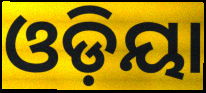
ଓଡ଼ିୟା